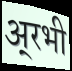
अ्रभी